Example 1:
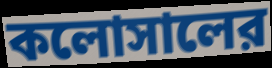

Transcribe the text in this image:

কলোসালের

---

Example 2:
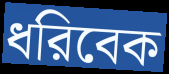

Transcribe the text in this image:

ধরিবেক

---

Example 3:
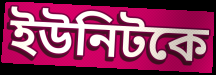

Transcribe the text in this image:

ইউনিটকে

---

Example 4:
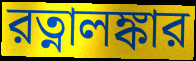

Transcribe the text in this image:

রত্নালঙ্কার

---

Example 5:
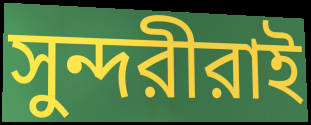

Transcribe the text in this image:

সুন্দরীরাই